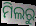
ମିଲରୁ